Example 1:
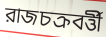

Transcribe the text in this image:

রাজচক্রবর্ত্তী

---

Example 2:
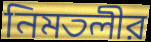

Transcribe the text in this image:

নিমতলীর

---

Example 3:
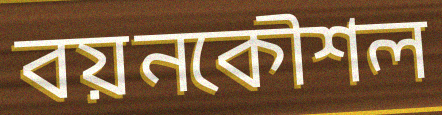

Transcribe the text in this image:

বয়নকৌশল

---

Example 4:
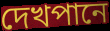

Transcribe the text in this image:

দেখপানে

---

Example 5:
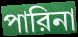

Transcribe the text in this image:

পারিনা